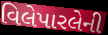
વિલેપારલેની